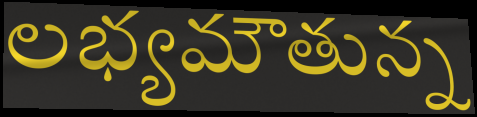
లభ్యమౌతున్న